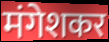
मंगेशकर